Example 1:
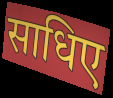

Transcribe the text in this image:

साधिए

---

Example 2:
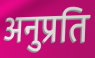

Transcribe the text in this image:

अनुप्रति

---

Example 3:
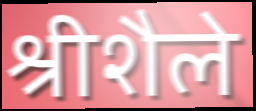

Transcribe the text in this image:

श्रीशैले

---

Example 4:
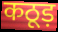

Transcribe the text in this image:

कठूड़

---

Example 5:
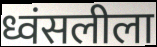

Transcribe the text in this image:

ध्वंसलीला